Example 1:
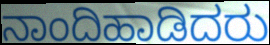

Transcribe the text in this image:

ನಾಂದಿಹಾಡಿದರು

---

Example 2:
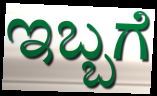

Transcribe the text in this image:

ಇಬ್ಬಗೆ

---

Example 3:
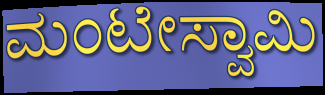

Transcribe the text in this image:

ಮಂಟೇಸ್ವಾಮಿ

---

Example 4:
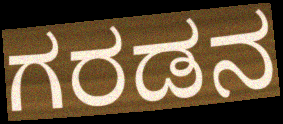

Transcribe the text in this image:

ಗರಡನ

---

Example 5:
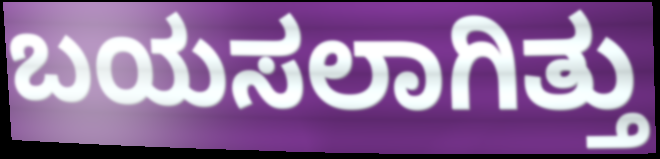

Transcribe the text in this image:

ಬಯಸಲಾಗಿತ್ತು